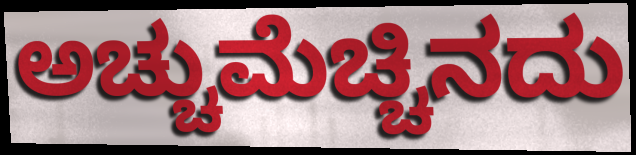
ಅಚ್ಚುಮೆಚ್ಚಿನದು